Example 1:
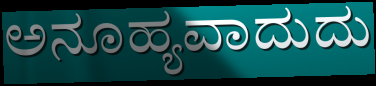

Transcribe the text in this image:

ಅನೂಹ್ಯವಾದುದು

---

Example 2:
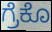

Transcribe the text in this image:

ಗ್ರೆಕೊ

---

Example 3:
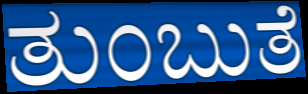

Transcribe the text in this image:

ತುಂಬುತೆ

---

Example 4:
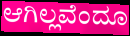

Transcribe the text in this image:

ಆಗಿಲ್ಲವೆಂದೂ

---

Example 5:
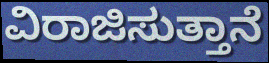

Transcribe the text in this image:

ವಿರಾಜಿಸುತ್ತಾನೆ